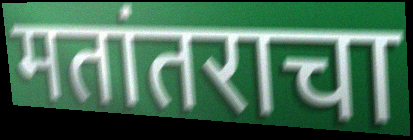
मतांतराचा